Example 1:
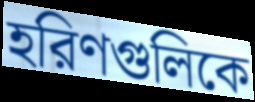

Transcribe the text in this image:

হরিণগুলিকে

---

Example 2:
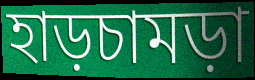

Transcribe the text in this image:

হাড়চামড়া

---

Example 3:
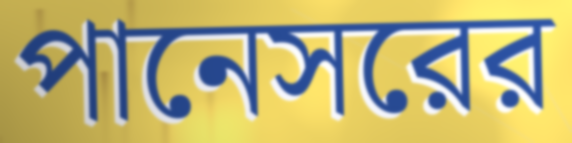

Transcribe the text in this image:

পানেসরের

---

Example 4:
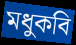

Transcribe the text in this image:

মধুকবি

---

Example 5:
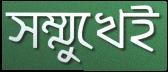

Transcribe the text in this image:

সম্মুখেই